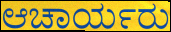
ಆಚಾರ್ಯರು